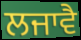
ਲਜਾਵੈ